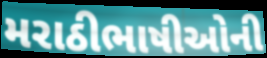
મરાઠીભાષીઓની